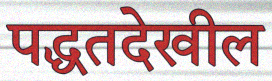
पद्धतदेखील